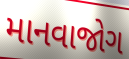
માનવાજોગ